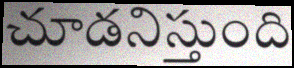
చూడనిస్తుంది